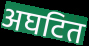
अघटित